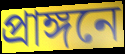
প্রাঙ্গনে